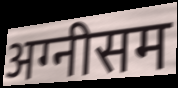
अग्नीसम